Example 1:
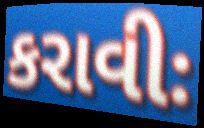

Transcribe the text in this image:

કરાવીઃ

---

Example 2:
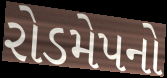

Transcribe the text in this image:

રોડમેપનો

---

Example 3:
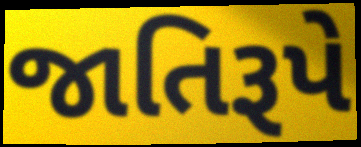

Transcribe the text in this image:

જાતિરૂપે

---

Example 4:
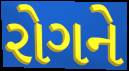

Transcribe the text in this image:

રોગને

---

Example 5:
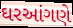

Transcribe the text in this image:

ઘરઆંગણે